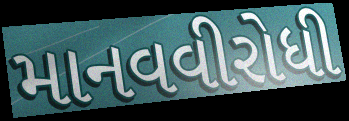
માનવવીરોધી